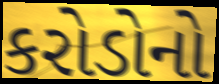
કરોડોનો